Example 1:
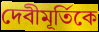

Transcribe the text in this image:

দেবীমূর্তিকে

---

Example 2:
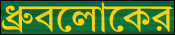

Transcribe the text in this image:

ধ্রুবলোকের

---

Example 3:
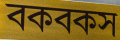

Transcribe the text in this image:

বকবকস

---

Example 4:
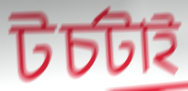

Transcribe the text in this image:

টর্চটাই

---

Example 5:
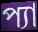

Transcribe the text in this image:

প্যা